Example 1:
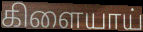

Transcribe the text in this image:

கிளையாய்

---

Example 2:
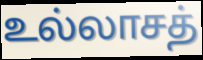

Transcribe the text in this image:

உல்லாசத்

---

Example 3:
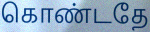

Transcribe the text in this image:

கொண்டதே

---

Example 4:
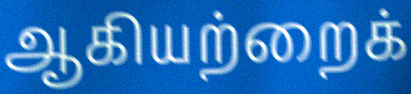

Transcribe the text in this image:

ஆகியற்றைக்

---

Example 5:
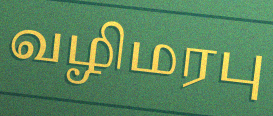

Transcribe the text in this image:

வழிமரபு